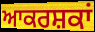
ਆਕਰਸ਼ਕਾਂ